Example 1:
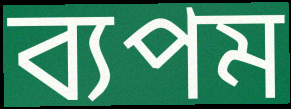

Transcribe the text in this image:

ব্যপম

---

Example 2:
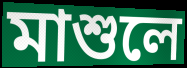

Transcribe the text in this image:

মাশুলে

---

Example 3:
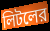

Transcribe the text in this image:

লিটলের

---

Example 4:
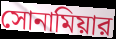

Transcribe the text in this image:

সোনামিয়ার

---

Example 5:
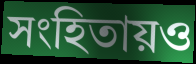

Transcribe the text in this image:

সংহিতায়ও